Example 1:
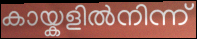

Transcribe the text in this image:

കായ്കളിൽനിന്ന്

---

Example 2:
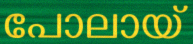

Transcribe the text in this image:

പോലായ്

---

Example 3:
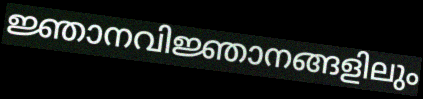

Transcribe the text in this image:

ജ്ഞാനവിജ്ഞാനങ്ങളിലും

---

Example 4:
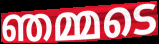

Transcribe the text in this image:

ഞമ്മടെ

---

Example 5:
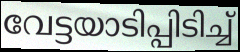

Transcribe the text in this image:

വേട്ടയാടിപ്പിടിച്ച്